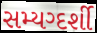
સમ્યગ્દર્શી